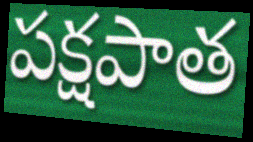
పక్షపాత